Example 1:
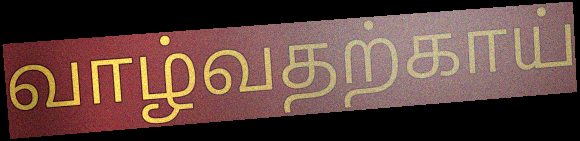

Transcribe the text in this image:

வாழ்வதற்காய்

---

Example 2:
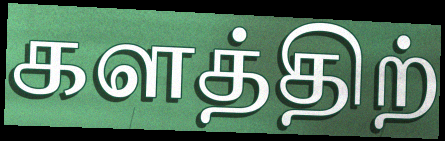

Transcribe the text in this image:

களத்திற்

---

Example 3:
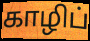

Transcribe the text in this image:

காழிப்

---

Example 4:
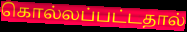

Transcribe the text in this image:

கொல்லப்பட்டதால்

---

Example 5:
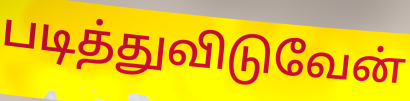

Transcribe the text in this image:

படித்துவிடுவேன்